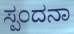
ಸ್ಪಂದನಾ